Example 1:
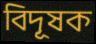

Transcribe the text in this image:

বিদূষক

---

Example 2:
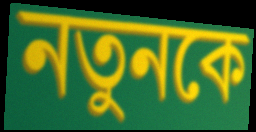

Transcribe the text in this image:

নতুনকে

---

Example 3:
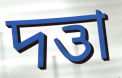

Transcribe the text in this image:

দত্তা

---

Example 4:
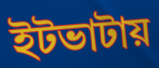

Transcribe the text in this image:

ইটভাটায়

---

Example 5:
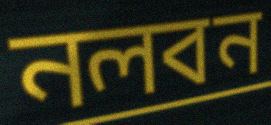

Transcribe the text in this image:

নলবন